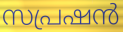
സപ്രഷൻ